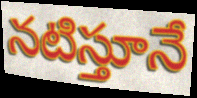
నటిస్తూనే